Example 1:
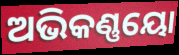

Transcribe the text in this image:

ଅଭିକଣ୍ଣୟୋ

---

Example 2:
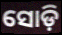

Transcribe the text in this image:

ସୋଡ଼ି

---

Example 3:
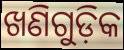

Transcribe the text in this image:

ଖଣିଗୁଡ଼ିକ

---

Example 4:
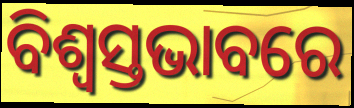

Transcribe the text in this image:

ବିଶ୍ୱସ୍ତଭାବରେ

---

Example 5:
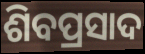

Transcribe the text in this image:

ଶିବପ୍ରସାଦ